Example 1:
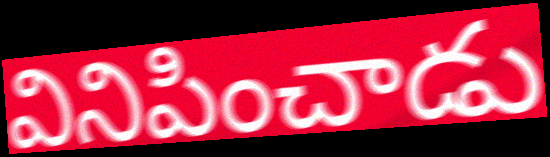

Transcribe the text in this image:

వినిపించాడు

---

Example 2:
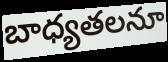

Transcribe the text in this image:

బాధ్యతలనూ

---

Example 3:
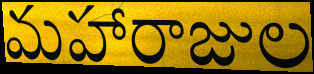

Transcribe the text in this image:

మహారాజుల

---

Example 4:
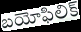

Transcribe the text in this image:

బయోఫిలిక్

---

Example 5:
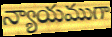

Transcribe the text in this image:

న్యాయముగా